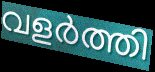
വളർത്തി